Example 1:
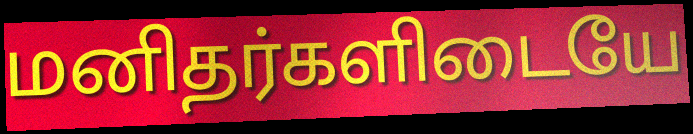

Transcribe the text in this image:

மனிதர்களிடையே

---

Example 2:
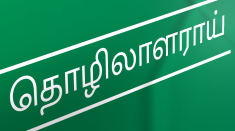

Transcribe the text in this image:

தொழிலாளராய்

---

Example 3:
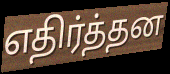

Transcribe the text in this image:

எதிர்த்தன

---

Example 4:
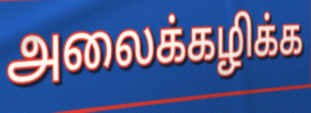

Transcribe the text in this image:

அலைக்கழிக்க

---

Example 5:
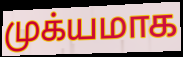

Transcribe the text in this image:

முக்யமாக